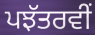
ਪਝੱਤਰਵੀਂ